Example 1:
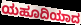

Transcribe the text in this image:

ಯಹೂದಿಯಾದ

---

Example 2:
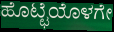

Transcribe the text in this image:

ಹೊಟ್ಟೆಯೊಳಗೇ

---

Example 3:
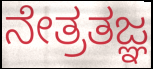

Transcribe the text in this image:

ನೇತ್ರತಜ್ಞ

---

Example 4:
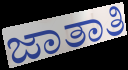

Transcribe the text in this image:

ಜಾತಾತಿ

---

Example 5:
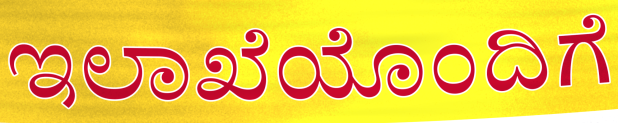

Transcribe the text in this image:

ಇಲಾಖೆಯೊಂದಿಗೆ